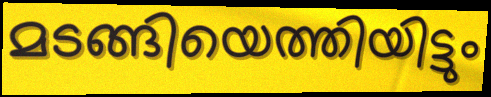
മടങ്ങിയെത്തിയിട്ടും